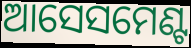
ଆସେସମେଣ୍ଟ